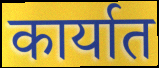
कार्यात